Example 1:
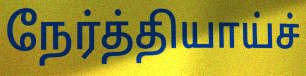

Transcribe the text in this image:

நேர்த்தியாய்ச்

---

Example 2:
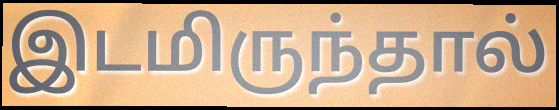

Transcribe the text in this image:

இடமிருந்தால்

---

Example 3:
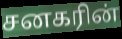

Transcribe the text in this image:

சனகரின்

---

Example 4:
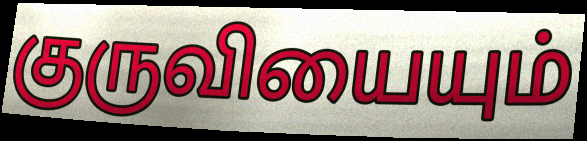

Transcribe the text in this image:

குருவியையும்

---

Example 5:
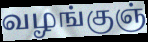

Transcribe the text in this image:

வழங்குஞ்